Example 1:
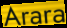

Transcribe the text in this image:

Arara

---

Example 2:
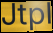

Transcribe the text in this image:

Jtpl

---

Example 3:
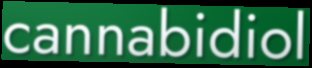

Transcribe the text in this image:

cannabidiol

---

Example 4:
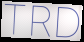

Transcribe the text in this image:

TRD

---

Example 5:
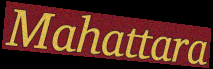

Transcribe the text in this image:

Mahattara